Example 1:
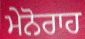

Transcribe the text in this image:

ਮੇਨੋਰਾਹ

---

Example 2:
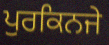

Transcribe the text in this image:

ਪੁਰਕਿਨਜੇ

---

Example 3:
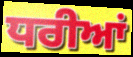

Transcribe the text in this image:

ਧਰੀਆਂ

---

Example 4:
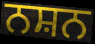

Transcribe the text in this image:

ਨਸ਼ਨ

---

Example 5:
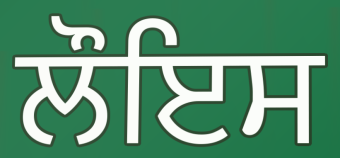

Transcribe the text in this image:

ਲੌਇਸ